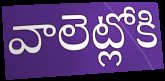
వాలెట్లోకి